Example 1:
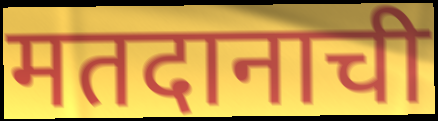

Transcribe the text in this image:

मतदानाची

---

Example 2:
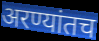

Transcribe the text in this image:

अरण्यांतच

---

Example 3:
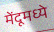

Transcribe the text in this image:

मेंदूमध्ये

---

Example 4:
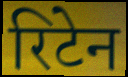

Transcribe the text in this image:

रिटेन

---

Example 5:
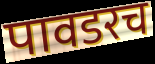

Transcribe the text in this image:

पावडरच